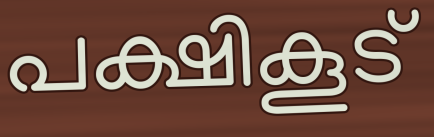
പക്ഷികൂട്